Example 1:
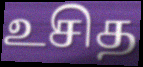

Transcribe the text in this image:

உசித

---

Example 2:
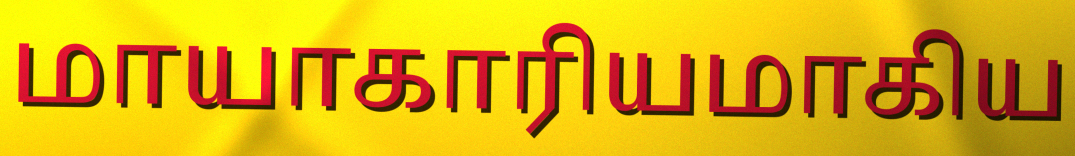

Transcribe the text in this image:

மாயாகாரியமாகிய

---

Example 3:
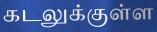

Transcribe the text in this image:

கடலுக்குள்ள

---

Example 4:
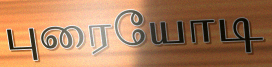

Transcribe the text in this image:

புரையோடி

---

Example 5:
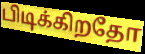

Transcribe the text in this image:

பிடிக்கிறதோ